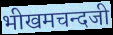
भीखमचन्दजी